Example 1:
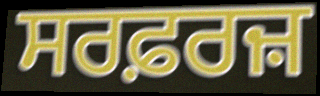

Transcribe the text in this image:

ਸਰਫ਼ਰਜ਼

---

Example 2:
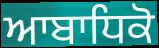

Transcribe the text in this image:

ਆਬਾਧਿਕੋ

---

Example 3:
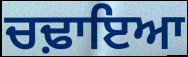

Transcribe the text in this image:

ਚਢ਼ਾਇਆ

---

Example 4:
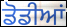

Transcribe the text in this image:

ਡੋਡੀਆਂ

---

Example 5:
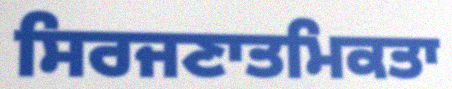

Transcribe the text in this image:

ਸਿਰਜਣਾਤਮਿਕਤਾ